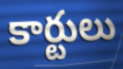
కార్టులు